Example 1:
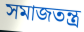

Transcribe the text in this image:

সমাজতন্ত্র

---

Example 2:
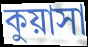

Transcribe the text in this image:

কুয়াসা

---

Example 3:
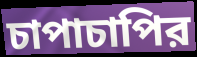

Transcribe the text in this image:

চাপাচাপির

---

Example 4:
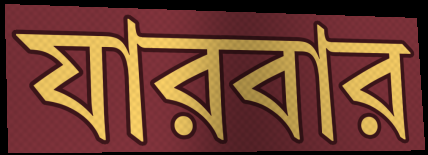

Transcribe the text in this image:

যারবার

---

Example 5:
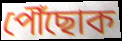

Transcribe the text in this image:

পৌঁছোক